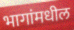
भागांमधील